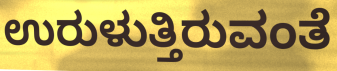
ಉರುಳುತ್ತಿರುವಂತೆ